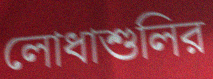
লোধাশুলির